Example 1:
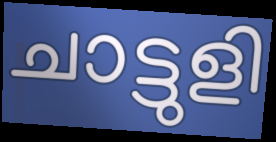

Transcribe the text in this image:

ചാട്ടുളി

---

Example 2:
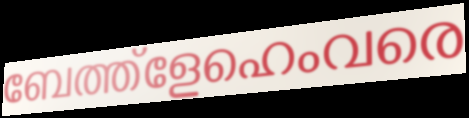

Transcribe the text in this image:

ബേത്ത്ളേഹെംവരെ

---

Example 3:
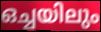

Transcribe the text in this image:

ഒച്ചയിലും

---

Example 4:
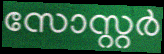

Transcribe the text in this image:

സോസ്റ്റർ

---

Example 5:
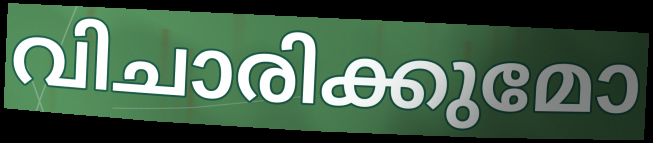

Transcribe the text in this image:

വിചാരിക്കുമോ